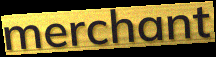
merchant